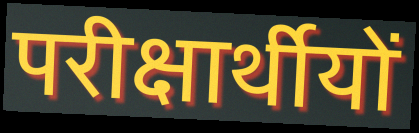
परीक्षार्थीयों